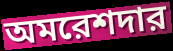
অমরেশদার